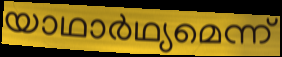
യാഥാർഥ്യമെന്ന്